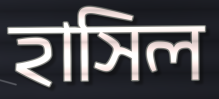
হাসিল